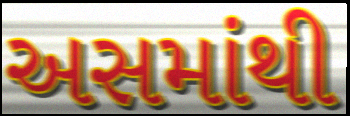
અસમાંથી